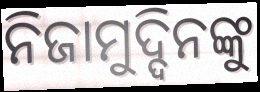
ନିଜାମୁଦ୍ଦିନଙ୍କୁ